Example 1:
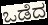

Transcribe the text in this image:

ಒಡೆದ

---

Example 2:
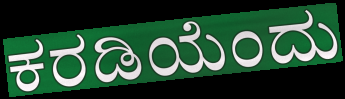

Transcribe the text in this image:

ಕರಡಿಯೆಂದು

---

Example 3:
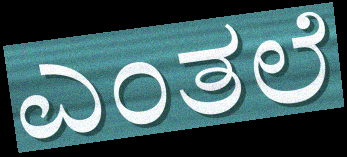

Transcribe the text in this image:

ಎಂತಲೆ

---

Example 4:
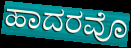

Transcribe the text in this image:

ಹಾದರವೊ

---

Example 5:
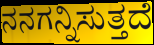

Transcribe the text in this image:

ನನಗನ್ನಿಸುತ್ತದೆ